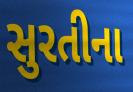
સુરતીના